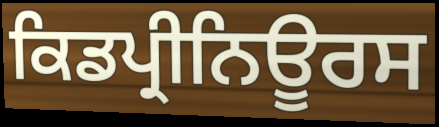
ਕਿਡਪ੍ਰੀਨਿਊਰਸ